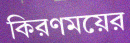
কিরণময়ের